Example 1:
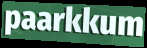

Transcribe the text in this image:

paarkkum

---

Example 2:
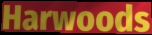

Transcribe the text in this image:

Harwoods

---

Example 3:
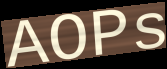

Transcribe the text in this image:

AOPs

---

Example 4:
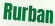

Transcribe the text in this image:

Rurban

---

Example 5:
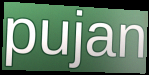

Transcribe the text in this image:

pujan